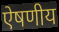
ऐषणीय